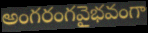
అంగరంగవైభవంగా